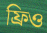
ফ্রিও